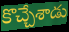
కొచ్చేశాడు